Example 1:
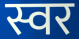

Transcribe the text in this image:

स्‍वर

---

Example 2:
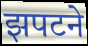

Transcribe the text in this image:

झपटने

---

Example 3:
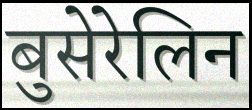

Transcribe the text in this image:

बुसेरेलिन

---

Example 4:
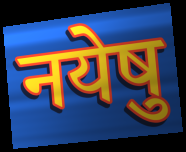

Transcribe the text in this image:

नयेषु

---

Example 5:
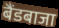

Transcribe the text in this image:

बैंडबाजा